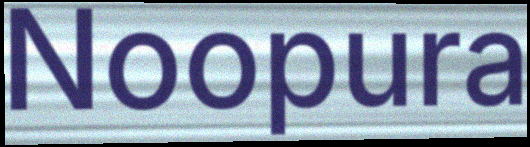
Noopura